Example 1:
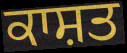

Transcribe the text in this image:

ਕਾਸ਼ਤ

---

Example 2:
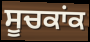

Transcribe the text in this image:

ਸੂਚਕਾਂਕ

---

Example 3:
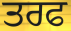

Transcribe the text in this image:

ਤਰਫ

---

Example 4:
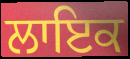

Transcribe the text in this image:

ਲਾਇਕ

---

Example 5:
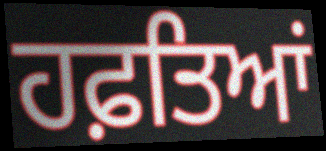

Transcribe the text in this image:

ਹਫ਼ਤਿਆਂ